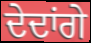
ਦੇਦਾਂਗੇ